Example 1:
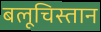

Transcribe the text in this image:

बलूचिस्तान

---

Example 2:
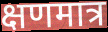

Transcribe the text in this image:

क्षणमात्र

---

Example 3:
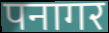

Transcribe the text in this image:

पनागर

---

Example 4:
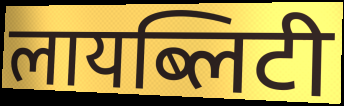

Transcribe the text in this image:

लायब्लिटी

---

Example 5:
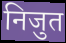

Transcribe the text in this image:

निजुत